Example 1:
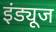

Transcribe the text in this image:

इंड्यूज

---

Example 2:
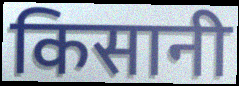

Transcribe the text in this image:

किसानी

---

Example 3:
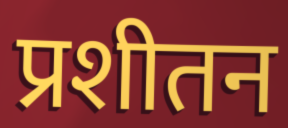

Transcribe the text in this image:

प्रशीतन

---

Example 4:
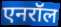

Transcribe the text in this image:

एनरॉल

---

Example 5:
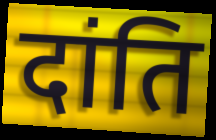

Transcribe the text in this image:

दांति